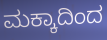
ಮಕ್ಕಾದಿಂದ